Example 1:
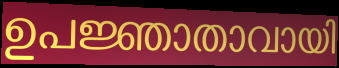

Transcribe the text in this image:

ഉപജ്ഞാതാവായി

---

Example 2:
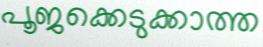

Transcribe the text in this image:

പൂജക്കെടുക്കാത്ത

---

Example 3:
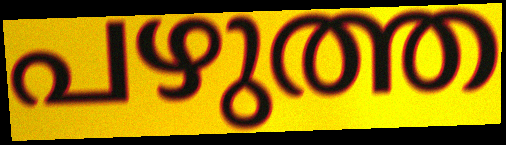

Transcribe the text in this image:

പഴുത്ത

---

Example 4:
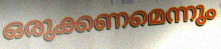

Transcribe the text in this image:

ഒരുക്കണമെന്നും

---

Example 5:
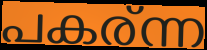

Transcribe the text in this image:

പകര്ന്ന